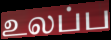
உலப்ப